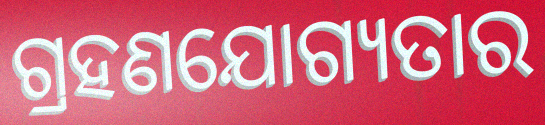
ଗ୍ରହଣଯୋଗ୍ୟତାର